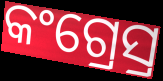
କଂଗ୍ରେସ୍ର